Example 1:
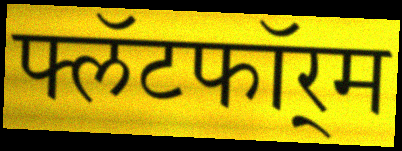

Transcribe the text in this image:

फ्लॅटफॉर्म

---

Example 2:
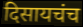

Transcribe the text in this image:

दिसायचंच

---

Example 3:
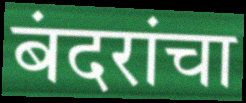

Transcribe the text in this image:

बंदरांचा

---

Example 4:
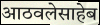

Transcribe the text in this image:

आठवलेसाहेब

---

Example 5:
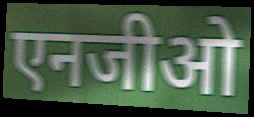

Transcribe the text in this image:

एनजीओ